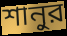
শানুর